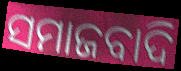
ସମାଜବାଦି